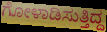
ಗೋಳಾಡಿಸುತ್ತಿದ್ದ